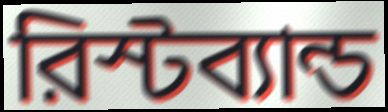
রিস্টব্যান্ড